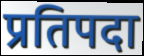
प्रतिपदा